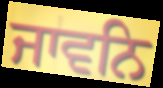
ਜਾਵਨਿ